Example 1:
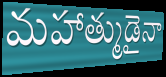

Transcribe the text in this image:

మహాత్ముడైనా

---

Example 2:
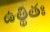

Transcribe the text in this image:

ఉత్థితః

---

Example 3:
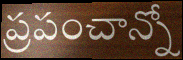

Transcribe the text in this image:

ప్రపంచాన్నో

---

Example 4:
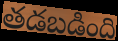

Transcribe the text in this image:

తడబడింది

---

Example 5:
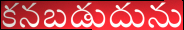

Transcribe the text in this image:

కనబడుదును